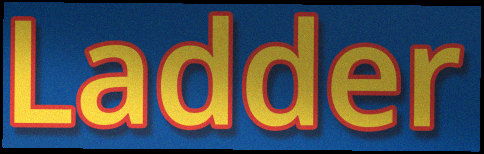
Ladder